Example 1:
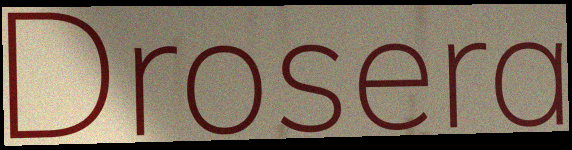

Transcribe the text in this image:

Drosera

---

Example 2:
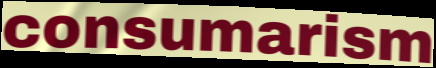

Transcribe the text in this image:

consumarism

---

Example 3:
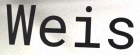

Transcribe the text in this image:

Weis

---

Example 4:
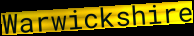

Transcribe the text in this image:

Warwickshire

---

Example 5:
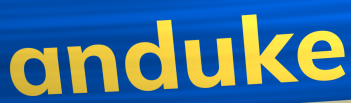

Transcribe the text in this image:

anduke